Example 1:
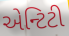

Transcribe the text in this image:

એન્ટિટી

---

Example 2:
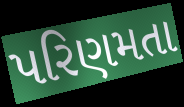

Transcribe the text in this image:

પરિણમતા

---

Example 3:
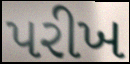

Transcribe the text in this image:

પરીખ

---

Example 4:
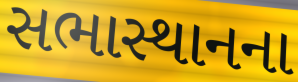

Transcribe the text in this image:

સભાસ્થાનના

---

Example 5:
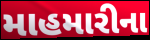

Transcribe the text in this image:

માહમારીના